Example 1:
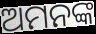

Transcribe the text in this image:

ଅମନଙ୍କ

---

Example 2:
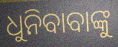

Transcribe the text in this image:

ଧୁନିବାବାଙ୍କୁ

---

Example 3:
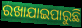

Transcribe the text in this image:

ରଖାଯାଇପାରୁଛି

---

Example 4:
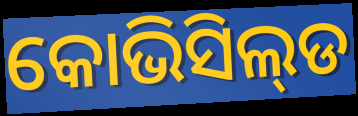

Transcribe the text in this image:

କୋଭିସିଲ୍‌ଡ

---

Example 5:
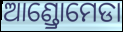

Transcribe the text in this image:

ଆଣ୍ଡ୍ରୋମେଡା